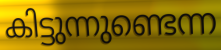
കിട്ടുന്നുണ്ടെന്ന